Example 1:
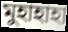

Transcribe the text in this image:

মুহাহাহা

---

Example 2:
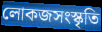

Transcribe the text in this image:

লোকজসংস্কৃতি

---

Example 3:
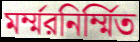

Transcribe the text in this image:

মর্ম্মরনির্ম্মিত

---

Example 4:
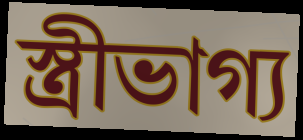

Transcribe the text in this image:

স্ত্রীভাগ্য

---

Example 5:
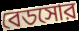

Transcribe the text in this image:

বেডসোর